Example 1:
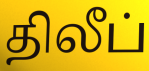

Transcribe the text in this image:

திலீப்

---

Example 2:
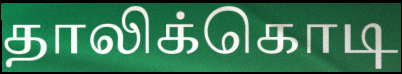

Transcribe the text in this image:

தாலிக்கொடி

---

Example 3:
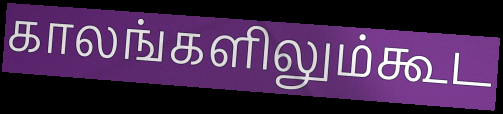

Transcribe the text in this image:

காலங்களிலும்கூட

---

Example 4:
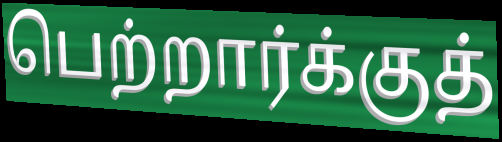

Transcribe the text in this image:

பெற்றார்க்குத்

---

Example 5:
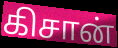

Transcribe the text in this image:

கிசான்